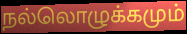
நல்லொழுக்கமும்